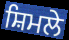
ਸ਼ਿਮਲੇ